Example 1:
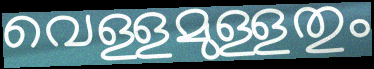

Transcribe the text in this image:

വെള്ളമുള്ളതും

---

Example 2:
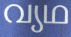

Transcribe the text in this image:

വ്യഥ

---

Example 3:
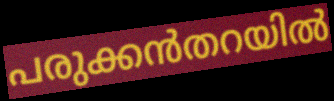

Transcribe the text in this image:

പരുക്കൻതറയിൽ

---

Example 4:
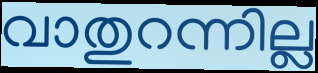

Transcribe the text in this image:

വാതുറന്നില്ല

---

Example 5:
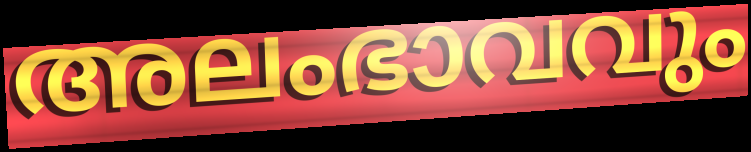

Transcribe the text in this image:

അലംഭാവവും